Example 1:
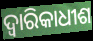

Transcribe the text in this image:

ଦ୍ୱାରିକାଧୀଶ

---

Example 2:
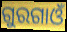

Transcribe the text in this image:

ଗୁରଗାଓଁ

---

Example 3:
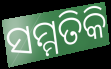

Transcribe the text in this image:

ସମ୍ମତିକି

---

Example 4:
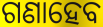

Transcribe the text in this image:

ଗଣାହେବ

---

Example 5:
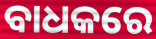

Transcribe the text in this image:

ବାଧକରେ